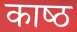
काष्‍ठ